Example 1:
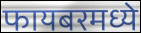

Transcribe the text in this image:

फायबरमध्ये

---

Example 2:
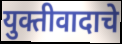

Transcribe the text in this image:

युक्तीवादाचे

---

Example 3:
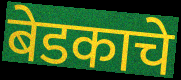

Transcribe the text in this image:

बेडकाचे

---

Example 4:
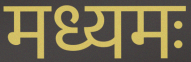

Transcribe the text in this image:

मध्यमः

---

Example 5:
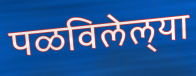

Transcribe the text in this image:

पळविलेल्या